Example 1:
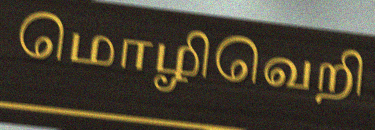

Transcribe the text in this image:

மொழிவெறி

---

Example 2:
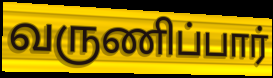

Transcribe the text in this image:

வருணிப்பார்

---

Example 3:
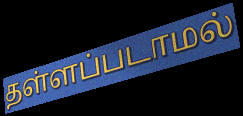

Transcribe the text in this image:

தள்ளப்படாமல்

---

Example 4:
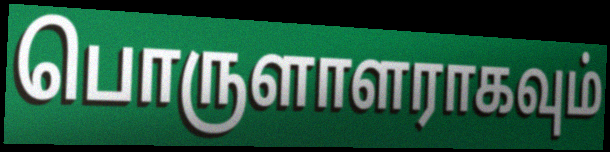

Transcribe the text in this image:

பொருளாளராகவும்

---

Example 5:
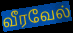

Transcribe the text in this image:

வீரவேல்